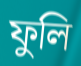
ফুলি